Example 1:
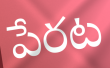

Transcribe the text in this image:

పేరట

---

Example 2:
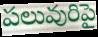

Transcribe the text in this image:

పలువురిపై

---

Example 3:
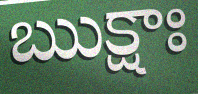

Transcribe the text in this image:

ఋక్షాః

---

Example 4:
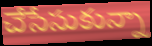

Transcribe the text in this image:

చేసేసుకున్నా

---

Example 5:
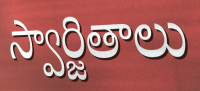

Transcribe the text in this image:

స్వార్జితాలు